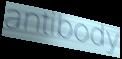
antibody